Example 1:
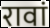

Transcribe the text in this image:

रावां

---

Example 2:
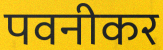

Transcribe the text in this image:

पवनीकर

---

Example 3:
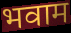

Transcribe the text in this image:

भवाम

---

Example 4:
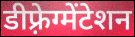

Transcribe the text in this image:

डीफ़्रेग्मेंटेशन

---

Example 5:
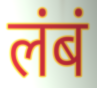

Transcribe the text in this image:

लंबं